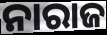
ନାରାଜ